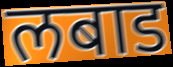
लबाड